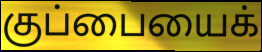
குப்பையைக்